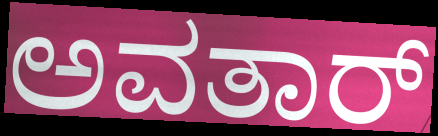
ಅವತಾರ್